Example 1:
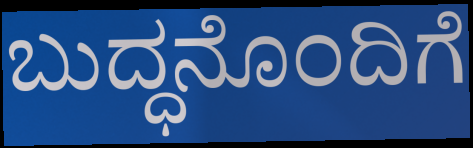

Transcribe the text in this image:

ಬುದ್ಧನೊಂದಿಗೆ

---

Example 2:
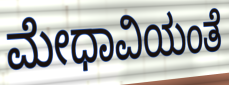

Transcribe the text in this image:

ಮೇಧಾವಿಯಂತೆ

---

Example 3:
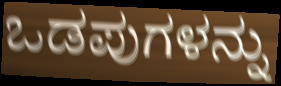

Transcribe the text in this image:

ಒಡಪುಗಳನ್ನು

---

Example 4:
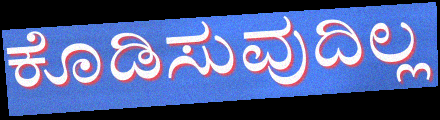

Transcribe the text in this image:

ಕೊಡಿಸುವುದಿಲ್ಲ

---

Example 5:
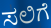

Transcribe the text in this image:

ಸಲಿಗೆ